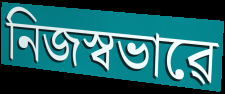
নিজস্বভাৱে